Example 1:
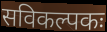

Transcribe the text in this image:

सविकल्पकः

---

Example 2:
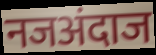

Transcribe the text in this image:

नजअंदाज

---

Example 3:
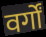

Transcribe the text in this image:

वर्गों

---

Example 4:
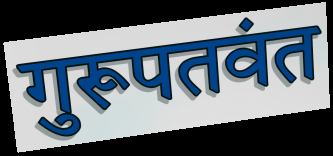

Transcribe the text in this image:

गुरूपतवंत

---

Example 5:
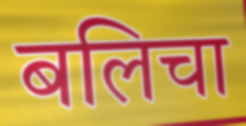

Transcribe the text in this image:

बलिचा